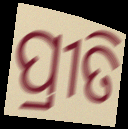
ପ୍ରୀତି